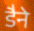
डैने